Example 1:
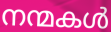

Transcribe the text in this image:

നന്മകൾ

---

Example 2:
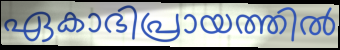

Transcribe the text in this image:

ഏകാഭിപ്രായത്തിൽ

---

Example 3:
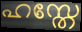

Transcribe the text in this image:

ഹസ്തേ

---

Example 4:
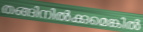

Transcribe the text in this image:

തങ്ങിനിൽക്കുമെങ്കിൽ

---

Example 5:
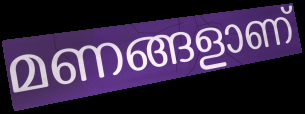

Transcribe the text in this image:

മണങ്ങളാണ്